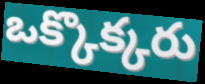
ఒక్కొక్కరు